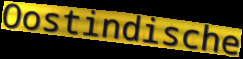
Oostindische